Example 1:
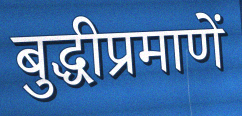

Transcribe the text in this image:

बुद्धीप्रमाणें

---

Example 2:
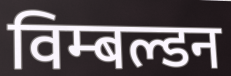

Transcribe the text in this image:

विम्बल्डन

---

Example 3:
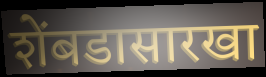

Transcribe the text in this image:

शेंबडासारखा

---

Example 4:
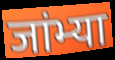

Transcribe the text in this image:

जांभ्या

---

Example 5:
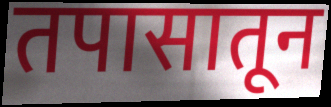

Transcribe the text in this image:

तपासातून